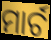
ମାର୍ଚ